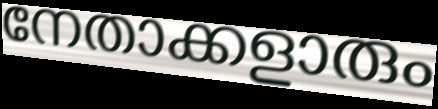
നേതാക്കളാരും